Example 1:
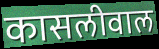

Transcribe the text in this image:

कासलीवाल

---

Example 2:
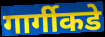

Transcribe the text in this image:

गार्गीकडे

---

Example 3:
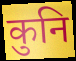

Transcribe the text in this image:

कुनि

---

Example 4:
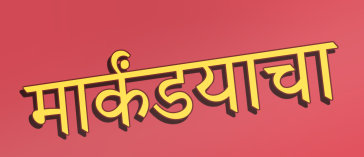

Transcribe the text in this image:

मार्कंडयाचा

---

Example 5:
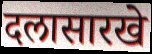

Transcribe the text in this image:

दलासारखे